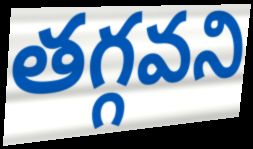
తగ్గవని